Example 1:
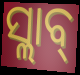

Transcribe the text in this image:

ସ୍ଲାବ୍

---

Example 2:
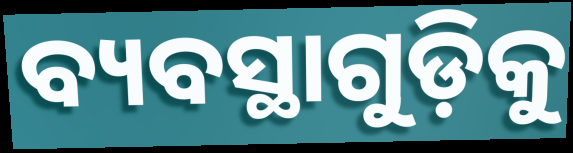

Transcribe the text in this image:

ବ୍ୟବସ୍ଥାଗୁଡ଼ିକୁ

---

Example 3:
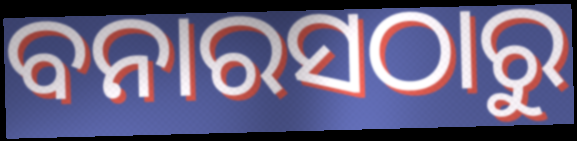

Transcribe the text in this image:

ବନାରସଠାରୁ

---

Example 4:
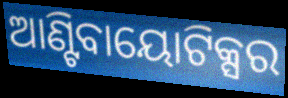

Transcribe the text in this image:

ଆଣ୍ଟିବାୟୋଟିକ୍ସର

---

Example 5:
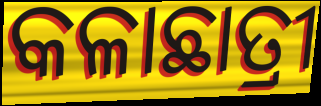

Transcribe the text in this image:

କଳାଛାତ୍ରୀ